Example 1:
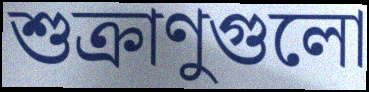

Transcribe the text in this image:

শুক্রাণুগুলো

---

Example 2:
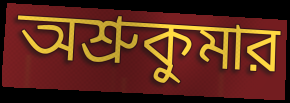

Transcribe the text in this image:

অশ্রুকুমার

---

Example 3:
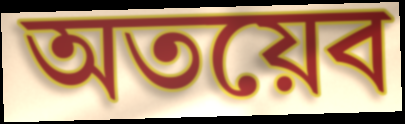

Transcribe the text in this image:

অতয়েব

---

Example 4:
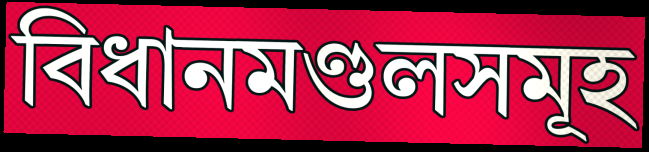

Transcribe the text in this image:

বিধানমণ্ডলসমূহ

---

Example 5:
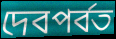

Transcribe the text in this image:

দেবপর্বত